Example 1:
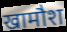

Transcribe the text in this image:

खामौश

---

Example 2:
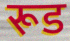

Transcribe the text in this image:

रूड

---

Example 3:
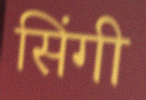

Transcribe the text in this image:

सिंगी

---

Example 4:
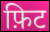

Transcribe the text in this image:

फ़िट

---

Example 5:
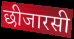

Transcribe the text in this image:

छीजारसी